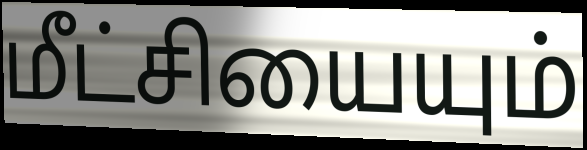
மீட்சியையும்